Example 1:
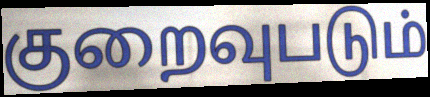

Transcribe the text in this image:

குறைவுபடும்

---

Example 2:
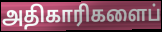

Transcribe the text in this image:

அதிகாரிகளைப்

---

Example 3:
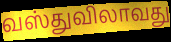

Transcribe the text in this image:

வஸ்துவிலாவது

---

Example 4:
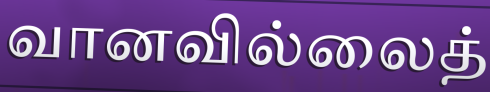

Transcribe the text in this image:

வானவில்லைத்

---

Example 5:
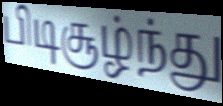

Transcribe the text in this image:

பிடிசூழ்ந்து